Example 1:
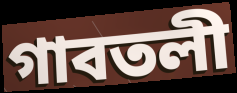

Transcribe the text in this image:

গাবতলী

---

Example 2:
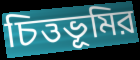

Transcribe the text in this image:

চিত্তভূমির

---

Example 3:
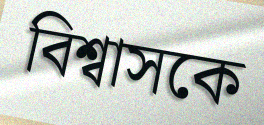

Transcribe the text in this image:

বিশ্বাসকে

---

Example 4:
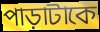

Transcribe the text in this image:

পাড়াটাকে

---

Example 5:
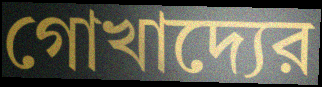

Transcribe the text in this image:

গোখাদ্যের